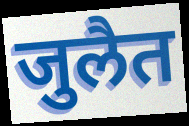
जुलैत